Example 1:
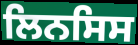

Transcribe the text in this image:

ਲਿਨਸਿਸ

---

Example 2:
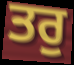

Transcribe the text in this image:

ਤਰੁ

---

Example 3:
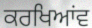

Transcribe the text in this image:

ਕਰਖਿਆਂਵ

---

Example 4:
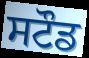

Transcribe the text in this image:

ਸਟੌਡ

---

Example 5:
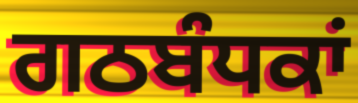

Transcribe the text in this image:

ਗਠਬੰਧਕਾਂ